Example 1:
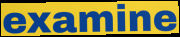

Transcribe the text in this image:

examine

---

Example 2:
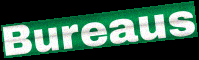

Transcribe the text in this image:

Bureaus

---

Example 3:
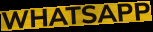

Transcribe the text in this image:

WHATSAPP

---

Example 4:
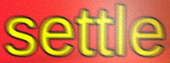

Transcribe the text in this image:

settle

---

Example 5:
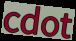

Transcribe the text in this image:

cdot